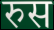
रुस